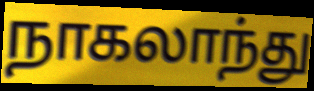
நாகலாந்து